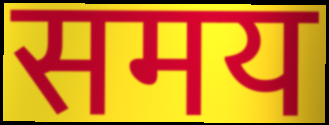
समय